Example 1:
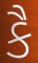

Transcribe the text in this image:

કૈ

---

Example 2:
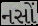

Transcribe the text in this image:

નસોં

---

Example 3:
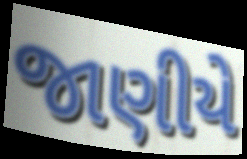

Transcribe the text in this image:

જાણીયે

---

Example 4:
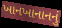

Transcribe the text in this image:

ખાનખાનાનનું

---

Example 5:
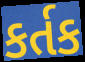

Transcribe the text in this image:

કર્તક